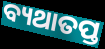
ବ୍ୟଥାତପ୍ତ